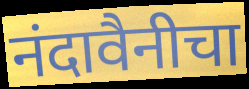
नंदावैनीचा